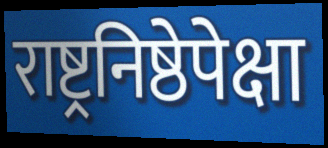
राष्ट्रनिष्ठेपेक्षा